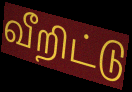
வீறிட்டு